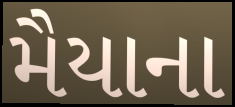
મૈયાના